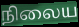
நிலைய